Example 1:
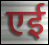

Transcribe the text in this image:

एई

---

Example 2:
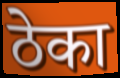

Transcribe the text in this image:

ठेका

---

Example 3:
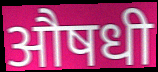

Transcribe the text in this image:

औषधी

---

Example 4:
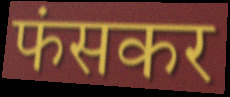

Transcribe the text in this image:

फंसकर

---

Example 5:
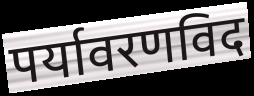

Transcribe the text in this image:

पर्यावरणविद